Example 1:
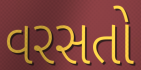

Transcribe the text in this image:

વરસતો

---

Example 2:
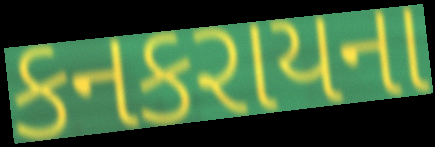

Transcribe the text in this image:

કનકરાયના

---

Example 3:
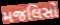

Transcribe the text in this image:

મજલિસો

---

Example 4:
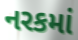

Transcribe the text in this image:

નરકમાં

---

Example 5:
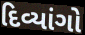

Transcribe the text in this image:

દિવ્યાંગો